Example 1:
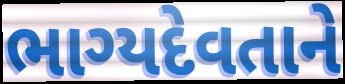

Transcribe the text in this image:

ભાગ્યદેવતાને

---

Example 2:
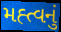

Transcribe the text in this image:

મહ્ત્વનું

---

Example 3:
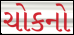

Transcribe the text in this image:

ચોકનો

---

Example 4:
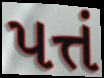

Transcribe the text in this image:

પત્તં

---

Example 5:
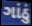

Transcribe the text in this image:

ગાંઠું